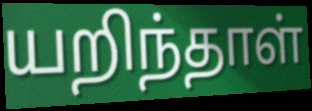
யறிந்தாள்